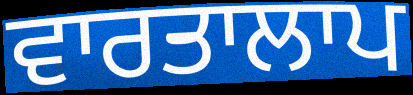
ਵਾਰਤਾਲਾਪ